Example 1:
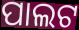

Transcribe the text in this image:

ପାଲଟ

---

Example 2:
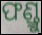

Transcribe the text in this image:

ଫଣ୍ଡ୍ରୁ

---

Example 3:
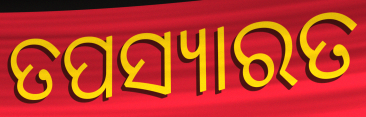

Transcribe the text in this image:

ତପସ୍ୟାରତ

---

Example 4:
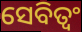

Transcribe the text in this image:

ସେବିତ୍ୱଂ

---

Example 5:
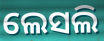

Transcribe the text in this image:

ଲେସଲି